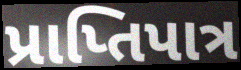
પ્રાપ્તિપાત્ર